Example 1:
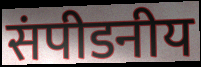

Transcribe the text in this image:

संपीडनीय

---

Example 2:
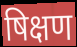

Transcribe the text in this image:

षिक्षण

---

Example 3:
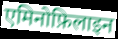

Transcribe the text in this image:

एमिनोफ़िलाइन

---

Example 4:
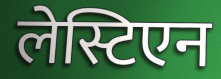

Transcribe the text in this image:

लेस्टिएन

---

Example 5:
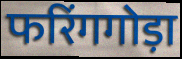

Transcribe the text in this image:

फरिंगगोड़ा